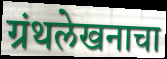
ग्रंथलेखनाचा